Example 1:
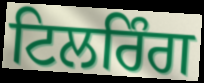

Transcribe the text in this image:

ਟਿਲਰਿੰਗ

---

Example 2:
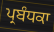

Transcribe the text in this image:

ਪ੍ਰਬੰਧਕਾ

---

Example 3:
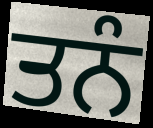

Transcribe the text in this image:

ਤਨੰ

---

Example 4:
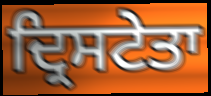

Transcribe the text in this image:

ਦ੍ਰਿਸਟੇਤਾ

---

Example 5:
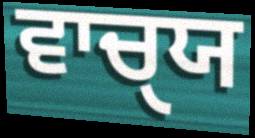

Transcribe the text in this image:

ਵਾਚੑਯ